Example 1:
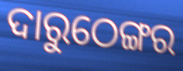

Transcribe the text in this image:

ଦାରୁଠେଙ୍ଗର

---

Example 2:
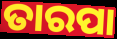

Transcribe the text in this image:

ତାରପା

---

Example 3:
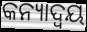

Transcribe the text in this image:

କନ୍ୟାଦ୍ୱୟ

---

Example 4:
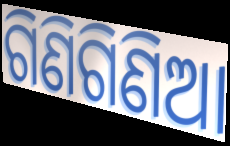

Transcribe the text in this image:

ଗିଣିଗିଣିଆ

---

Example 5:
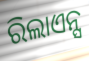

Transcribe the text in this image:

ରିଲାଏନ୍ସ